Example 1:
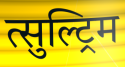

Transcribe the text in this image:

त्सुल्ट्रिम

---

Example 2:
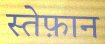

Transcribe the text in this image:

स्तेफ़ान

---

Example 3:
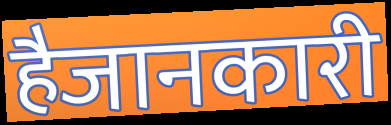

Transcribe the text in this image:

हैजानकारी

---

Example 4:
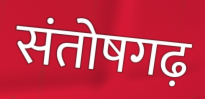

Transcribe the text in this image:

संतोषगढ़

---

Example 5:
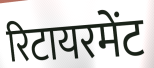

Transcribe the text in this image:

रिटायरमेंट